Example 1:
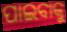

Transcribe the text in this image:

ପାଇବାକୁ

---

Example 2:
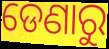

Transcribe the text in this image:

ଡେଣାରୁ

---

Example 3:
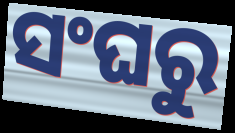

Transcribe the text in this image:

ସଂଘରୁ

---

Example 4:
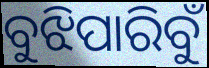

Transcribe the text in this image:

ବୁଝିପାରିବୁଁ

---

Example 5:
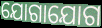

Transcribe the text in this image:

ଯୋଗାଯୋଗ